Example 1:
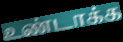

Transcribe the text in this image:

உண்டாக்க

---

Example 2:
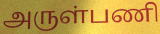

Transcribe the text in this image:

அருள்பணி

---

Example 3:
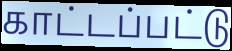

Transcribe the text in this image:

காட்டப்பட்டு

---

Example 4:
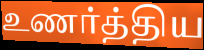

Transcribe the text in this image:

உணர்த்திய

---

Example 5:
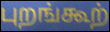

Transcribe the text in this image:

புறங்கூற்